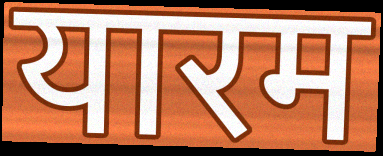
यारम